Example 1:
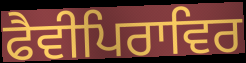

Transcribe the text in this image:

ਫੈਵੀਪਿਰਾਵਿਰ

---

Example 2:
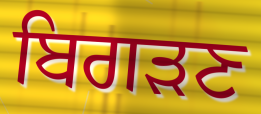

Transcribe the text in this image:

ਬਿਗੜਣ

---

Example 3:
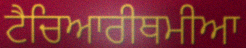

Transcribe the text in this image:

ਟੈਚਿਆਰੀਥਮੀਆ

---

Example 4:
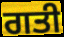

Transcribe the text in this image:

ਗਤੀ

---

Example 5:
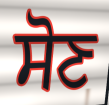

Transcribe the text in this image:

ਸੋਣ